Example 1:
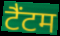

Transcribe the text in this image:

टैंटम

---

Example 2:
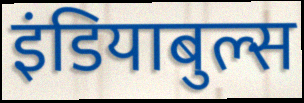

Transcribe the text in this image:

इंडियाबुल्‍स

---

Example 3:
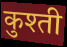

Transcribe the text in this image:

कुश्ती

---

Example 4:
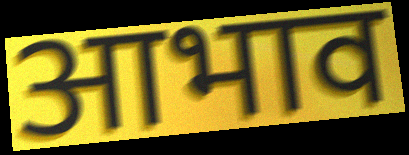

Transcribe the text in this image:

आभाव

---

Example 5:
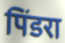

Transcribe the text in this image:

पिंडरा